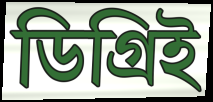
ডিগ্রিই